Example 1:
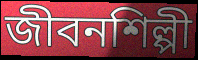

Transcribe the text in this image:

জীবনশিল্পী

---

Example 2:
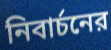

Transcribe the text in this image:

নিবার্চনের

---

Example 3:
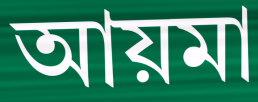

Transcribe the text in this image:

আয়মা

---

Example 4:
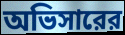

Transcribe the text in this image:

অভিসারের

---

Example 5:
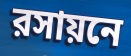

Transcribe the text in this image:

রসায়নে